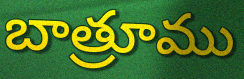
బాత్రూము